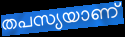
തപസ്യയാണ്